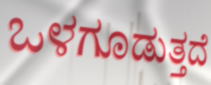
ಒಳಗೂಡುತ್ತದೆ